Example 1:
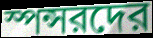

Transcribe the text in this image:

স্পন্সরদের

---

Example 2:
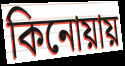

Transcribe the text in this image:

কিনোয়ায়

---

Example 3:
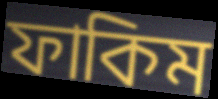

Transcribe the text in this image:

ফাকিম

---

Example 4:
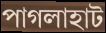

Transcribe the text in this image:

পাগলাহাট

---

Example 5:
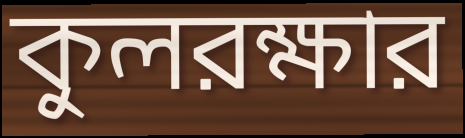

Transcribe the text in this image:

কুলরক্ষার